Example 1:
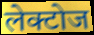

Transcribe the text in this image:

लेक्टोज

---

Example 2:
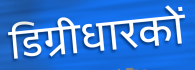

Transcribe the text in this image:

डिग्रीधारकों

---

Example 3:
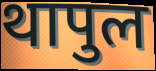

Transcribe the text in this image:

थापुल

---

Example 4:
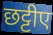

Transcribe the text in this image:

छट्टीए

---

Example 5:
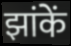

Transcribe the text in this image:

झांकें